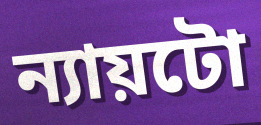
ন্যায়টো